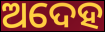
ଅଦେହ